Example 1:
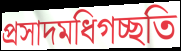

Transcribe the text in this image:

প্রসাদমধিগচ্ছতি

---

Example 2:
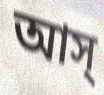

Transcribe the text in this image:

আস্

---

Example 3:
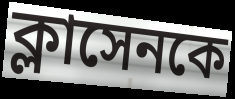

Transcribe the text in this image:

ক্লাসেনকে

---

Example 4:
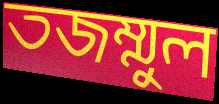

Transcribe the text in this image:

তজম্মুল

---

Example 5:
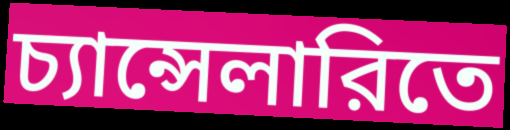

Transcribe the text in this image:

চ্যান্সেলারিতে